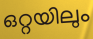
ഒറ്റയിലും